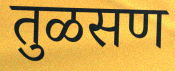
तुळसण